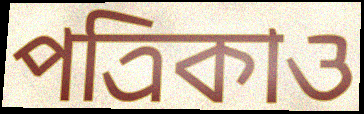
পত্রিকাও